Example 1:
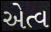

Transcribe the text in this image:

એત્વ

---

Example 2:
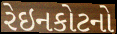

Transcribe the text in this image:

રેઇનકોટનો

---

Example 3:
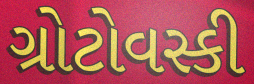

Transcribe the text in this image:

ગ્રોટોવસ્કી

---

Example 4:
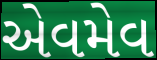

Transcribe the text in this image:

એવમેવ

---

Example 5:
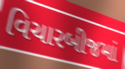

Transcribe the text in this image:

વિચારબીજમાં